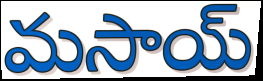
మసాయ్